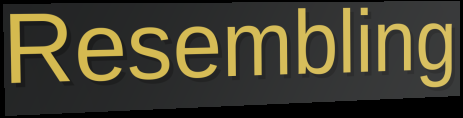
Resembling